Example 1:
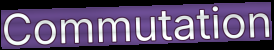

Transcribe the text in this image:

Commutation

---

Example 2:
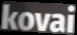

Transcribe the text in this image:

kovai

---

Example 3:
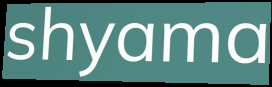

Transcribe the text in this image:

shyama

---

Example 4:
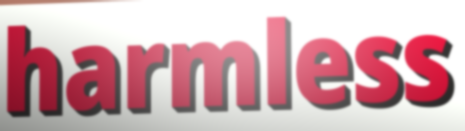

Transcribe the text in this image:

harmless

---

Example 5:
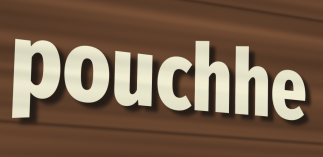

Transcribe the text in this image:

pouchhe